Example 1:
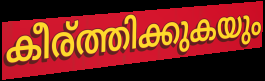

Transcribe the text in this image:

കീര്ത്തിക്കുകയും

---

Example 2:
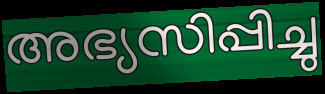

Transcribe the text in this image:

അഭ്യസിപ്പിച്ചു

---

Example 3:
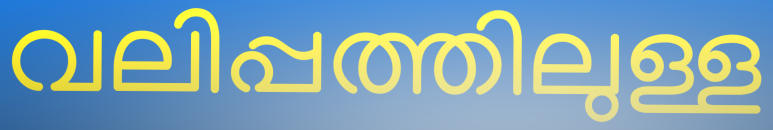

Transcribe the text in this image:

വലിപ്പത്തിലുള്ള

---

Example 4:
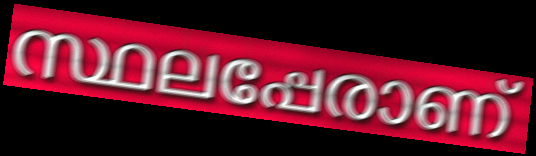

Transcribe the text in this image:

സ്ഥലപ്പേരാണ്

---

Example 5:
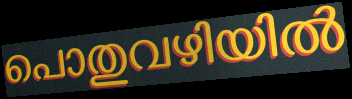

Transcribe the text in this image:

പൊതുവഴിയിൽ